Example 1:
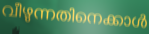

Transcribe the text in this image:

വീഴുന്നതിനെക്കാൾ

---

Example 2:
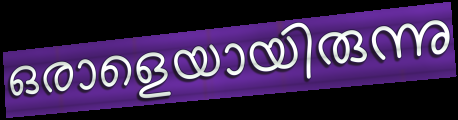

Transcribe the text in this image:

ഒരാളെയായിരുന്നു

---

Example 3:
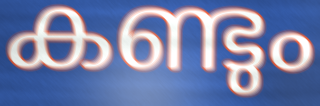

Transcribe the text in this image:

കണ്ടും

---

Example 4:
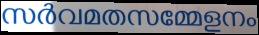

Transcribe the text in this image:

സർവമതസമ്മേളനം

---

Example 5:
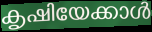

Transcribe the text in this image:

കൃഷിയേക്കാൾ